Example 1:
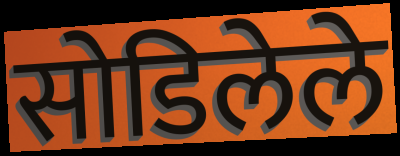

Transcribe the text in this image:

सोडिलेले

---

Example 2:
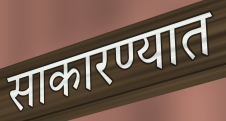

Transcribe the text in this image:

साकारण्यात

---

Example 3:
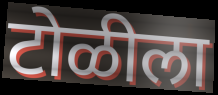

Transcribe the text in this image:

टोळीला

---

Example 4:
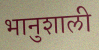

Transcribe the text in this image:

भानुशाली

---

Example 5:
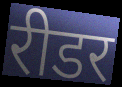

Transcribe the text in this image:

रीडर